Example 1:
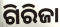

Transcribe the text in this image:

ଗିରିଜା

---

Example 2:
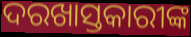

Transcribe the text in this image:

ଦରଖାସ୍ତକାରୀଙ୍କ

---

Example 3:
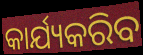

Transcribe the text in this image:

କାର୍ଯ୍ୟକରିବ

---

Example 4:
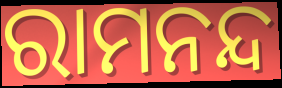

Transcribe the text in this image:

ରାମନନ୍ଦ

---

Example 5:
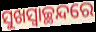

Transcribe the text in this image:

ସୁଖସ୍ୱାଚ୍ଛନ୍ଦରେ